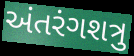
અંતરંગશત્રુ